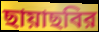
ছায়াছবির